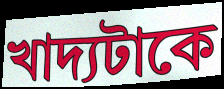
খাদ্যটাকে